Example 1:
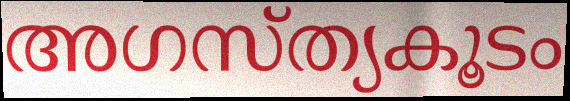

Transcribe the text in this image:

അഗസ്ത്യകൂടം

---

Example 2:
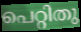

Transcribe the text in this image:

പെറ്റിതു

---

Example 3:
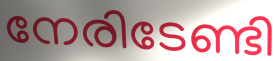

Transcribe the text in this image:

നേരിടേണ്ടി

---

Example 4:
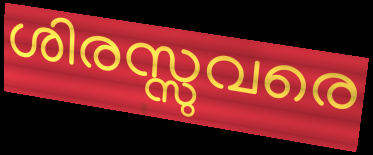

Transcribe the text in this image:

ശിരസ്സുവരെ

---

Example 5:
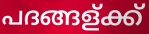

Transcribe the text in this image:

പദങ്ങള്ക്ക്